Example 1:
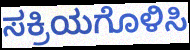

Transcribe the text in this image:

ಸಕ್ರಿಯಗೊಳಿಸಿ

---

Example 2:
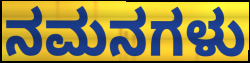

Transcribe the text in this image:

ನಮನಗಳು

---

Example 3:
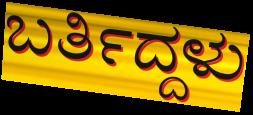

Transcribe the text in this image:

ಬರ್ತಿದ್ದಳು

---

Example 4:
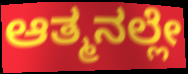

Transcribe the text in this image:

ಆತ್ಮನಲ್ಲೇ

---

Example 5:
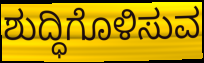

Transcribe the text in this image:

ಶುದ್ಧಿಗೊಳಿಸುವ